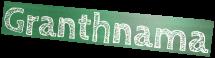
Granthnama